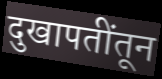
दुखापतींतून